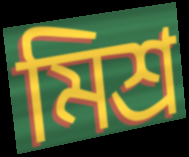
মিশ্ৰ